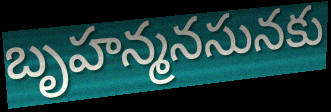
బృహన్మనసునకు